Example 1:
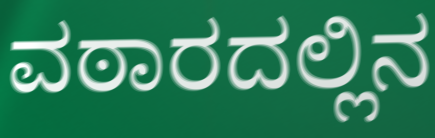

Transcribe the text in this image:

ವಠಾರದಲ್ಲಿನ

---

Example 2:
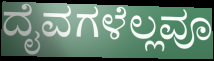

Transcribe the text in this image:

ದೈವಗಳೆಲ್ಲವೂ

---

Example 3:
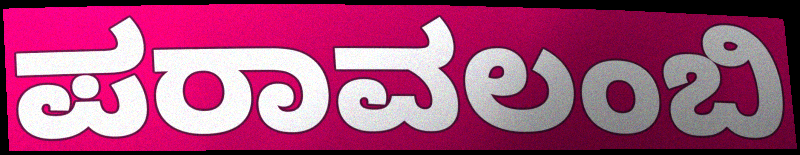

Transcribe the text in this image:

ಪರಾವಲಂಬಿ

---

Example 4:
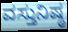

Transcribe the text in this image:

ವಸ್ತುನಿಷ್ಠ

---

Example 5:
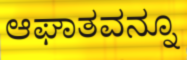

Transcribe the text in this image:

ಆಘಾತವನ್ನೂ